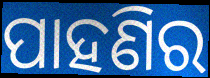
ପାହଣିର